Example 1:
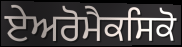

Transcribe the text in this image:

ਏਅਰੋਮੈਕਸਿਕੋ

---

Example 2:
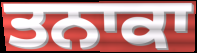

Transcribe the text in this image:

ਤਨਾਕਾ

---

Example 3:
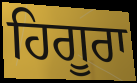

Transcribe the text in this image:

ਹਿਗੂਰਾ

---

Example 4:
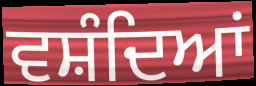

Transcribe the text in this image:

ਵਸ਼ੰਦਿਆਂ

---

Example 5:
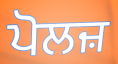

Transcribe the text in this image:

ਪੋਲਜ਼